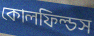
কোলফিল্ডস